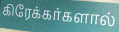
கிரேக்கர்களால்